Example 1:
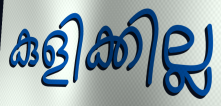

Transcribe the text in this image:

കുളിക്കില്ല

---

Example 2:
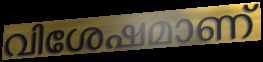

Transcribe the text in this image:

വിശേഷമാണ്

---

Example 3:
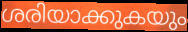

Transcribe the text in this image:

ശരിയാക്കുകയും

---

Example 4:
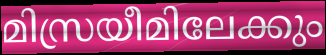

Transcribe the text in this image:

മിസ്രയീമിലേക്കും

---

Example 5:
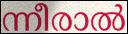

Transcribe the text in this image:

ന്നീരാൽ